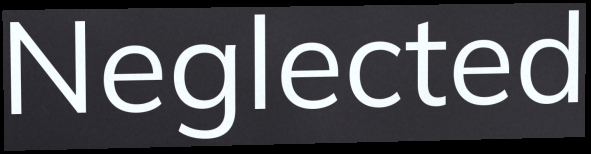
Neglected